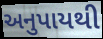
અનુપાયથી